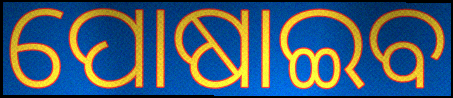
ପୋଷାଇବ